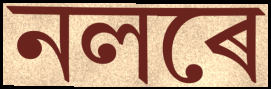
নলৰে